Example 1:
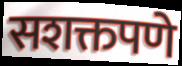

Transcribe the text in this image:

सशक्तपणे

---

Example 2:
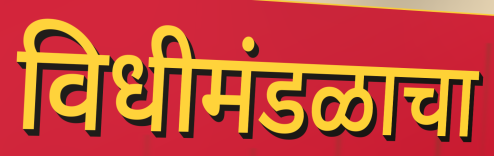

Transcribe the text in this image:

विधीमंडळाचा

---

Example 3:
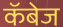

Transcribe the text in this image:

कॅबेज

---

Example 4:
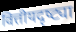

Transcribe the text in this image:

वित्तीयदृष्ट्या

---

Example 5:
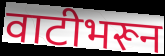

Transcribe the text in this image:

वाटीभरून